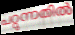
പറ്റുന്നതിൽ